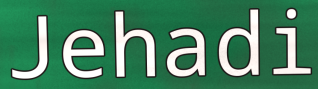
Jehadi